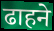
ढाहने